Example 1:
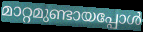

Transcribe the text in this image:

മാറ്റമുണ്ടായപ്പോൾ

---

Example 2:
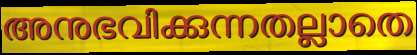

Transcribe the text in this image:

അനുഭവിക്കുന്നതല്ലാതെ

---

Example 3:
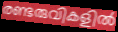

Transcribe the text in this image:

രണ്ടരുവികളിൽ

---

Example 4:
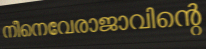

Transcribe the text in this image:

നീനെവേരാജാവിന്റെ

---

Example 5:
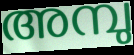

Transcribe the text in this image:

അമ്പു